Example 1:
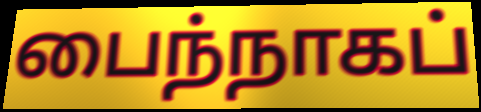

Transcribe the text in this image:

பைந்நாகப்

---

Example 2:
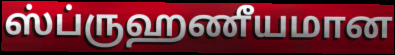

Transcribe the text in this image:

ஸ்ப்ருஹணீயமான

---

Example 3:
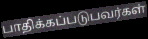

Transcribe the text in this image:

பாதிக்கப்படுபவர்கள்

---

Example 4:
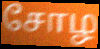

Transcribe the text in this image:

சோழ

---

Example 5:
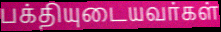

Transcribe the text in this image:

பக்தியுடையவர்கள்